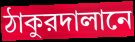
ঠাকুরদালানে